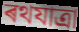
ৰথযাত্ৰা